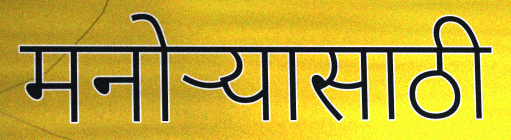
मनोऱ्यासाठी